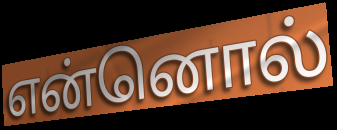
என்னொல்